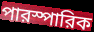
পারস্পারিক